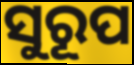
ସୁରୂପ